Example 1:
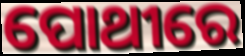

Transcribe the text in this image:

ପୋଥୀରେ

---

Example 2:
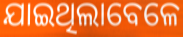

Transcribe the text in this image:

ଯାଇଥିଲାବେଳେ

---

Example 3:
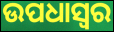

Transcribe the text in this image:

ଉପଧାସ୍ୱର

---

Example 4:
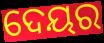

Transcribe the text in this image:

ଦେୟର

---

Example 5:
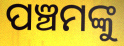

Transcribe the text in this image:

ପଞ୍ଚମଙ୍କୁ